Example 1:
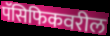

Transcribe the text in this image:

पॅसिफिकवरील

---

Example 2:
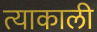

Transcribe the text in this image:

त्याकाली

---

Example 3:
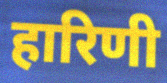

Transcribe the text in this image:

हारिणी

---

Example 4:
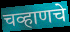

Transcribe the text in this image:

चव्हाणचे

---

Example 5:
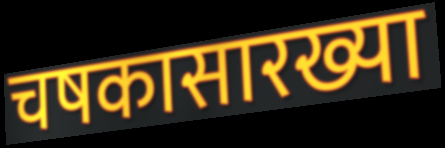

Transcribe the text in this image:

चषकासारख्या